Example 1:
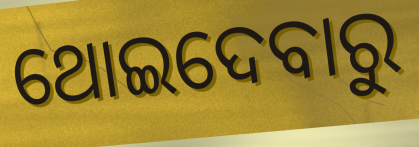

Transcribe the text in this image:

ଥୋଇଦେବାରୁ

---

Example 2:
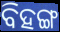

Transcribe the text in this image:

ବିହଙ୍ଗ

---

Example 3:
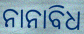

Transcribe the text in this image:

ନାନାବିଧ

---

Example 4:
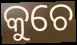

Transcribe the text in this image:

କୁଚେ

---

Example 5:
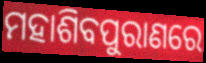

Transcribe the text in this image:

ମହାଶିବପୁରାଣରେ